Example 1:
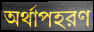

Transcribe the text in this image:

অর্থাপহরণ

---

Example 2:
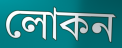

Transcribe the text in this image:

লোকন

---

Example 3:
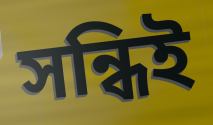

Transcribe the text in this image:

সন্ধিই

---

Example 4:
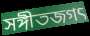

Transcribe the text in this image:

সঙ্গীতজগৎ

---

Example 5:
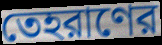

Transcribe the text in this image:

তেহরাণের